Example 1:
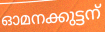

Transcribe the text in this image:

ഓമനക്കുട്ടന്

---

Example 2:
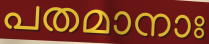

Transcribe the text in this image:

പതമാനാഃ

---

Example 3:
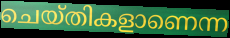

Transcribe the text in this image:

ചെയ്തികളാണെന്ന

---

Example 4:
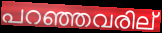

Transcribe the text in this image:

പറഞ്ഞവരില്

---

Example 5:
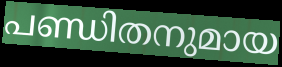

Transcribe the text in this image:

പണ്ഡിതനുമായ